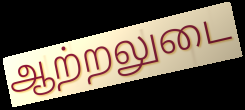
ஆற்றலுடை